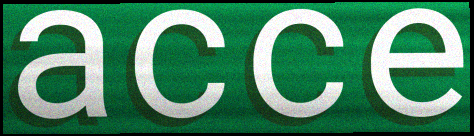
acce